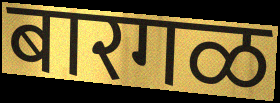
बारगळ